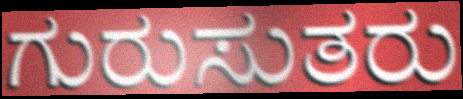
ಗುರುಸುತರು